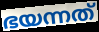
ഭയന്നത്